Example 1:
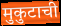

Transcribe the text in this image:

मुकुटाची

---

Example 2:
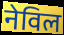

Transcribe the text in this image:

नेविल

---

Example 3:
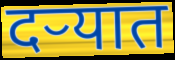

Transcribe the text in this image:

दऱ्यात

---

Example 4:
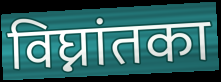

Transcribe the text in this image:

विघ्नांतका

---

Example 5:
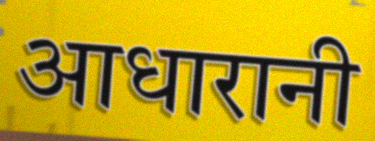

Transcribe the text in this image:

आधारानी